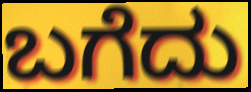
ಬಗೆದು